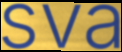
sva